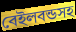
বেইলবন্ডসহ